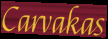
Carvakas